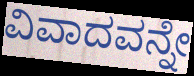
ವಿವಾದವನ್ನೇ